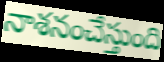
నాశనంచేస్తుంది